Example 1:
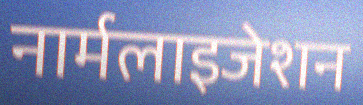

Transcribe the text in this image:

नार्मलाइजेशन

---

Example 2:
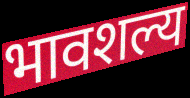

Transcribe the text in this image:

भावशल्य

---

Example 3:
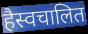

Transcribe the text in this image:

हैस्वचालित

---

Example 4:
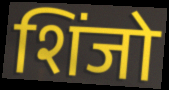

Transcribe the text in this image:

शिंजो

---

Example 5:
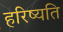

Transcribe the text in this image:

हरिष्यति